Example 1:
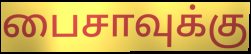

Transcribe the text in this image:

பைசாவுக்கு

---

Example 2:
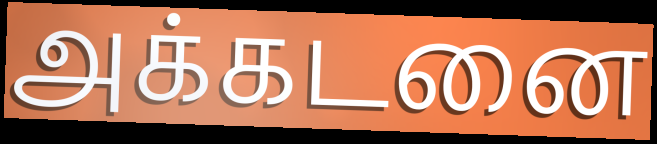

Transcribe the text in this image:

அக்கடனை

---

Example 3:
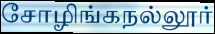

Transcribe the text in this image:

சோழிங்கநல்லூர்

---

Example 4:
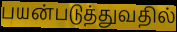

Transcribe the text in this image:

பயன்படுத்துவதில்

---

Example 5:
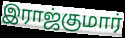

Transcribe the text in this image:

இராஜ்குமார்